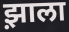
झ़ाला